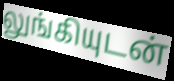
லுங்கியுடன்